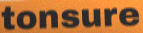
tonsure